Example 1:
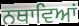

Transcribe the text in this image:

ਨਥਾਵਿਆਂ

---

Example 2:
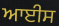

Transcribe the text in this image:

ਆਈਸ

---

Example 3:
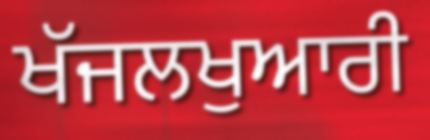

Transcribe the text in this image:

ਖੱਜਲਖੁਆਰੀ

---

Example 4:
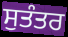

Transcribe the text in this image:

ਸੁਤੰਤਰ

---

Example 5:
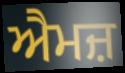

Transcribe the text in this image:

ਐਮਜ਼